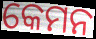
କେମନ